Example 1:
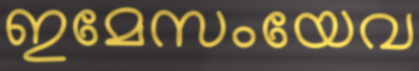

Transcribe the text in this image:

ഇമേസംയേവ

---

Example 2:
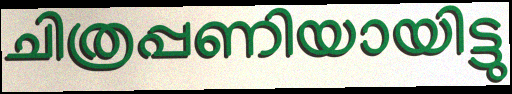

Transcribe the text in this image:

ചിത്രപ്പണിയായിട്ടു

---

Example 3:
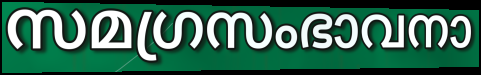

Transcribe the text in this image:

സമഗ്രസംഭാവനാ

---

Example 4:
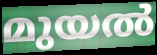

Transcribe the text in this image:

മുയൽ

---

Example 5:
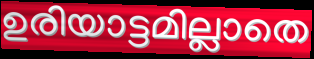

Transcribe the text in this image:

ഉരിയാട്ടമില്ലാതെ